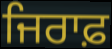
ਜਿਰਾਫ਼